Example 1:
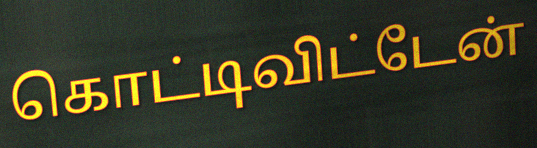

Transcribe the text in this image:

கொட்டிவிட்டேன்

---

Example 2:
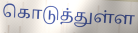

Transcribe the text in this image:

கொடுத்துள்ள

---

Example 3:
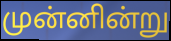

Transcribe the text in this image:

முன்னின்று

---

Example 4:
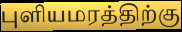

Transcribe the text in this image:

புளியமரத்திற்கு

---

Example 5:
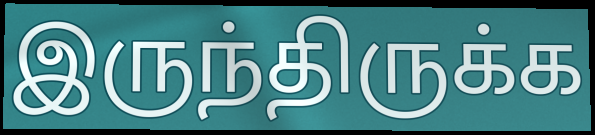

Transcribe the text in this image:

இருந்திருக்க